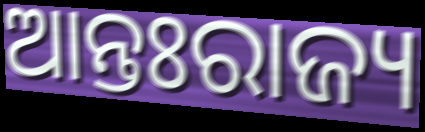
ଆନ୍ତଃରାଜ୍ୟ